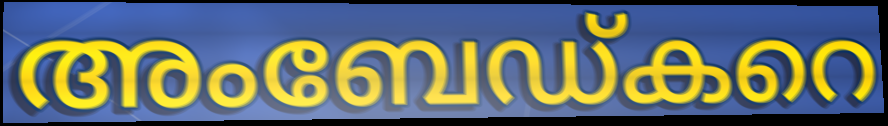
അംബേഡ്കറെ